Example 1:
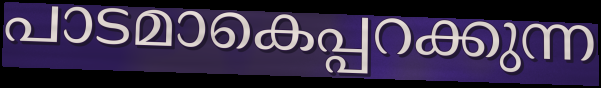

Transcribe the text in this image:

പാടമാകെപ്പറക്കുന്ന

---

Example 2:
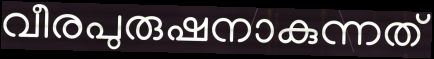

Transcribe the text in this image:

വീരപുരുഷനാകുന്നത്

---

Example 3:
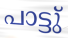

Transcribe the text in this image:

പാട്ടു്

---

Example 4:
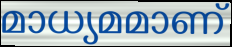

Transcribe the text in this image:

മാധ്യമമാണ്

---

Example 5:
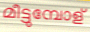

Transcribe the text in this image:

മീട്ടുമ്പോള്